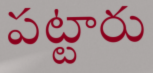
పట్టారు